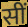
सीं